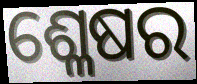
ଶ୍ଳେଷର